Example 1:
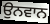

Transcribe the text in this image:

ਉਨਵਾਨ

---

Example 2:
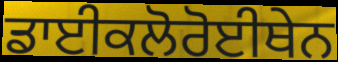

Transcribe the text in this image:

ਡਾਈਕਲੋਰੋਈਥੇਨ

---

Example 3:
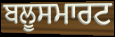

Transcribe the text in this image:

ਬਲੂਸਮਾਰਟ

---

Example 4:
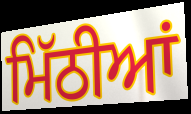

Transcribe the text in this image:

ਮਿੱਠੀਆਂ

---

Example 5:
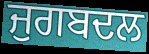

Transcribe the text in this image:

ਜੁਗਬਦਲ